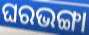
ଘରଭଙ୍ଗା